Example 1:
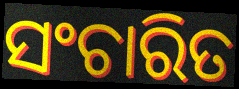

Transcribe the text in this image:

ସଂଚାରିତ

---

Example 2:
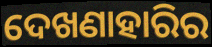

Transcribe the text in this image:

ଦେଖଣାହାରିର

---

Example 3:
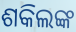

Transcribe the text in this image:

ଶକିଲଙ୍କ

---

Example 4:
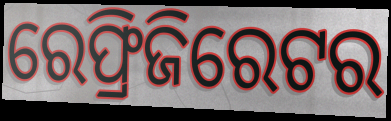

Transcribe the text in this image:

ରେଫ୍ରିଜିରେଟର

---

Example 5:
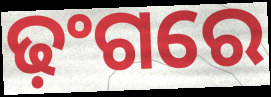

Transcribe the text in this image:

ଢ଼ଂଗରେ